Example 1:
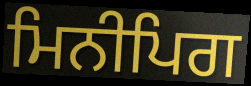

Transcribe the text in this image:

ਮਿਨੀਪਿਗ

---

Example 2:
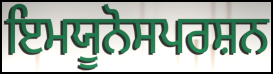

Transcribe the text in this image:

ਇਮਯੂਨੋਸਪਰਸ਼ਨ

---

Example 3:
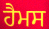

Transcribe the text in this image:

ਹੈਮਸ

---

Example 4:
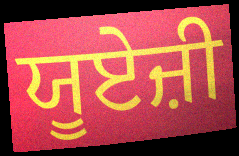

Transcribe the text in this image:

ਯੂਏਜ਼ੀ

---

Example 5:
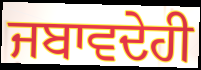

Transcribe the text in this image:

ਜਬਾਵਦੇਹੀ